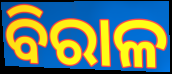
ବିରାଳ